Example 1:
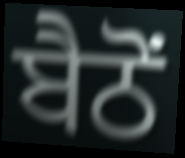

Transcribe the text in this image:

ਬੈਠੋਂ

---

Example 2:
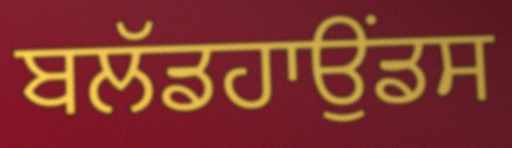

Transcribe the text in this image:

ਬਲੱਡਹਾਉਂਡਸ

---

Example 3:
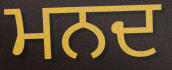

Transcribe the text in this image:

ਮਨਦ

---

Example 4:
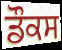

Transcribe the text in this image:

ਡੌਕਸ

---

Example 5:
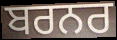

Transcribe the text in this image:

ਬਰਨਰ